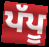
ਪੱਪੂ